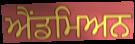
ਐਂਡਮਿਅਨ